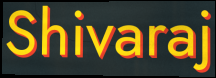
Shivaraj